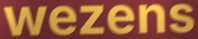
wezens